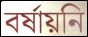
বর্ষায়নি